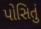
પોસિતું